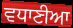
ਵਧਾਣੀਆ